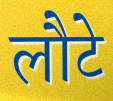
लौटे